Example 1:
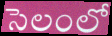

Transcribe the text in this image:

సెలంలో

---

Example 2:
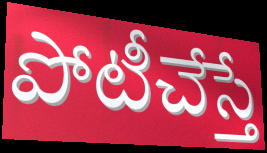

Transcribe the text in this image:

పోటీచేస్తే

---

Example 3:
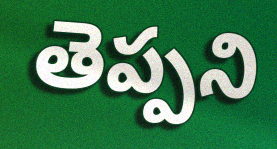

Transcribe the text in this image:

తెప్పని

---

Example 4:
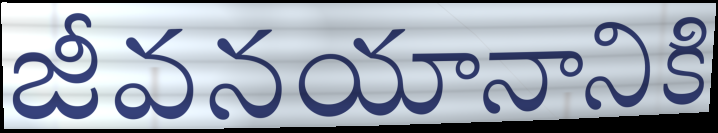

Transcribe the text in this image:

జీవనయానానికి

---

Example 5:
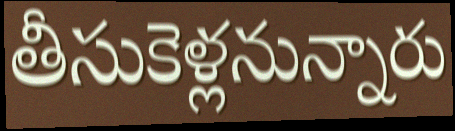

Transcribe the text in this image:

తీసుకెళ్లనున్నారు